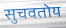
सुचवतोय